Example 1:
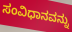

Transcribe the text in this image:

ಸಂವಿಧಾನವನ್ನು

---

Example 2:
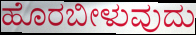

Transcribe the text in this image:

ಹೊರಬೀಳುವುದು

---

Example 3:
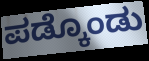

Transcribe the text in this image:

ಪಡ್ಕೊಂಡು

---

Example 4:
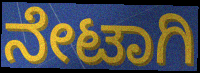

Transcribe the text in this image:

ನೇಟಾಗಿ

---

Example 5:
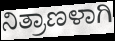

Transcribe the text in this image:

ನಿತ್ರಾಣಳಾಗಿ